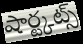
షార్ట్కట్స్